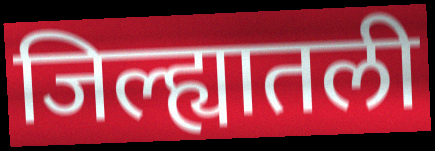
जिल्ह्यातली